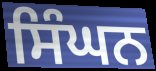
ਸਿੰਘਨ